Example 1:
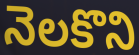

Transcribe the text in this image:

నెలకొని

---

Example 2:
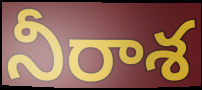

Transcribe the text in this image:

నీరాశ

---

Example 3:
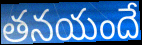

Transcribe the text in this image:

తనయందే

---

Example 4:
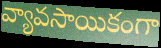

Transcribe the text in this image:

వ్యావసాయికంగా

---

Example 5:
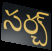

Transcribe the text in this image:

సర్చ్